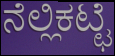
ನೆಲ್ಲಿಕಟ್ಟೆ